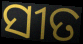
ସୀତ